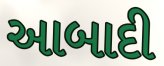
આબાદી